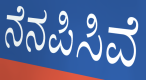
ನೆನಪಿಸಿವೆ